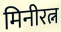
मिनीरत्न